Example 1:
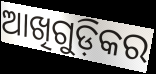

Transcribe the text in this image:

ଆଖିଗୁଡ଼ିକର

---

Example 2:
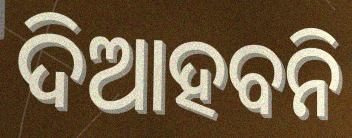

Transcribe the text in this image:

ଦିଆହବନି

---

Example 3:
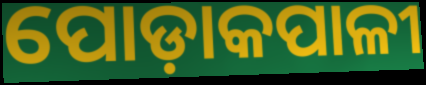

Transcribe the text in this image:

ପୋଡ଼ାକପାଳୀ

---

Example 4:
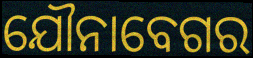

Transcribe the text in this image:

ଯୌନାବେଗର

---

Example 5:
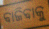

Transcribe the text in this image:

ବାଜିବାକୁ